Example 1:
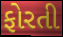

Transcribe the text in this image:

ફોરતી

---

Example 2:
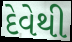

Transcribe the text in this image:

દેવેથી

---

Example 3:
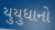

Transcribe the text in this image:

યુયુધાનો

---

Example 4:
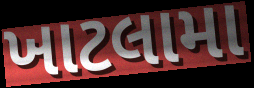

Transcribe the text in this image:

ખાટલામા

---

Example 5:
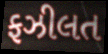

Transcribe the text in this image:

ફઝીલત